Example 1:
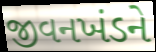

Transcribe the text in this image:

જીવનખંડને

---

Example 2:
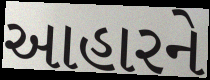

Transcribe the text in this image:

આહારને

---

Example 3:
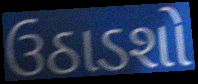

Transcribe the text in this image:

ઉઠાડશો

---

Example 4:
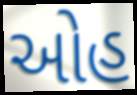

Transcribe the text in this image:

ઓહ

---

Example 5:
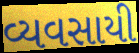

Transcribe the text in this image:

વ્યવસાયી